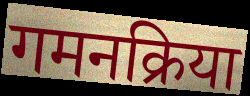
गमनक्रिया